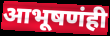
आभूषणंही